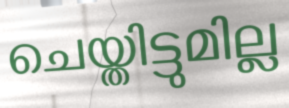
ചെയ്തിട്ടുമില്ല